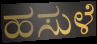
ಹಸುಳೆ